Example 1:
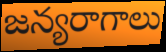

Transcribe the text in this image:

జన్యరాగాలు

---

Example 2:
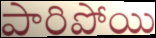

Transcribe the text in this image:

పారిపోయి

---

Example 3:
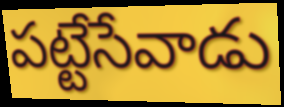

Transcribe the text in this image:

పట్టేసేవాడు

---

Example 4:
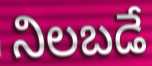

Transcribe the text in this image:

నిలబడే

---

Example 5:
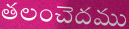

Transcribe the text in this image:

తలంచెదము